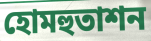
হোমহুতাশন